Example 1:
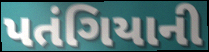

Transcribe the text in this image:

પતંગિયાની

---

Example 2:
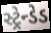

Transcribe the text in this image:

સ્ટ્રેન્ડેડ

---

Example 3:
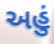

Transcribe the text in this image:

અહું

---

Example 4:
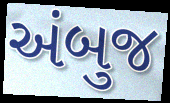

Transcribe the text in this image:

અંબુજ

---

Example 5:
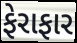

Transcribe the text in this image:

ફેરાફાર